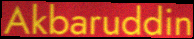
Akbaruddin